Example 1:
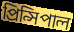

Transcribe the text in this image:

প্রিন্সিপাল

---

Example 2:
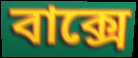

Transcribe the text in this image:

বাক্সে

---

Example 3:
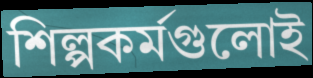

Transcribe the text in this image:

শিল্পকর্মগুলোই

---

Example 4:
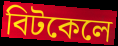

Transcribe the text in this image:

বিটকেলে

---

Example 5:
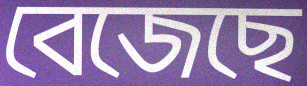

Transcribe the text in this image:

বেজেছে